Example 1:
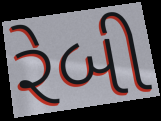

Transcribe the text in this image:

રેબી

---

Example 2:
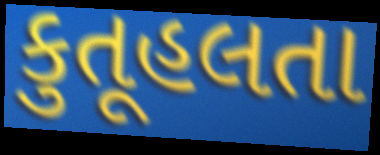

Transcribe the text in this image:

કુતૂહલતા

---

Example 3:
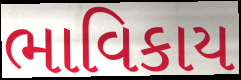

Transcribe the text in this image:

ભાવિકાય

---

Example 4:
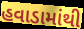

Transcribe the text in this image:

હવાડામાંથી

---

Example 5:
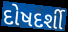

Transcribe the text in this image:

દોષદર્શી